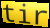
tir